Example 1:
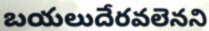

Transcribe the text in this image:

బయలుదేరవలెనని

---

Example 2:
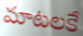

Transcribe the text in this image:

మాటలకే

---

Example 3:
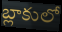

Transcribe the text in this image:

బ్లాకులో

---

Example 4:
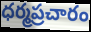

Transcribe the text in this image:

ధర్మప్రచారం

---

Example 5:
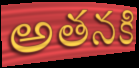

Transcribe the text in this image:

అతనకి